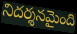
నిదర్శనమైంది